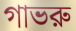
গাভরু